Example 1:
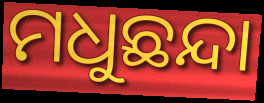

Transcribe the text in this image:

ମଧୁଛନ୍ଦା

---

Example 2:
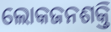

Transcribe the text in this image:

ଲୋକଜନଶକ୍ତି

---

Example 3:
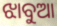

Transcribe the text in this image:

ଝାବୁଆ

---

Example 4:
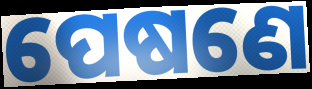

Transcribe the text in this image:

ପେଷଣେ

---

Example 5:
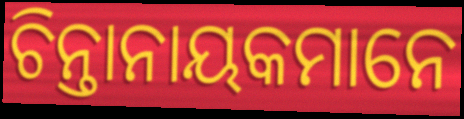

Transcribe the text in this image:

ଚିନ୍ତାନାୟକମାନେ